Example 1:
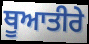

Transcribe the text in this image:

ਥੂਆਤੀਰੇ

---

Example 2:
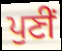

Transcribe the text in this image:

ਪੁਣੀਂ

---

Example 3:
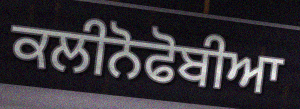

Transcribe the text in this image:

ਕਲੀਨੋਫੋਬੀਆ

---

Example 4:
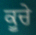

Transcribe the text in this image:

ਕੂਚੇ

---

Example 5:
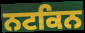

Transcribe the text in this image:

ਨਟਕਿਨ